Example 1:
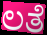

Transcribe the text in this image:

ಲತೆ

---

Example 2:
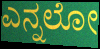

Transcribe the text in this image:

ಎನ್ನಲೋ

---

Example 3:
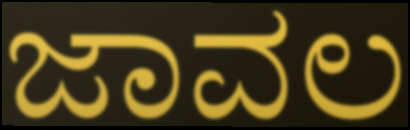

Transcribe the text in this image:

ಜಾವಲ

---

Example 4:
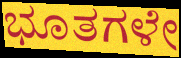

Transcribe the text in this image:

ಭೂತಗಳೇ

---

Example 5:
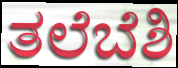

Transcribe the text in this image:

ತಲೆಬೆಶಿ